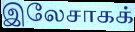
இலேசாகக்